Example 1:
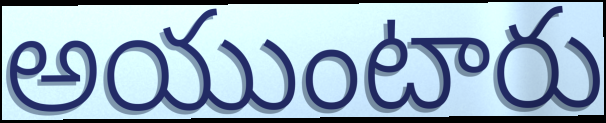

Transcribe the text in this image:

అయుంటారు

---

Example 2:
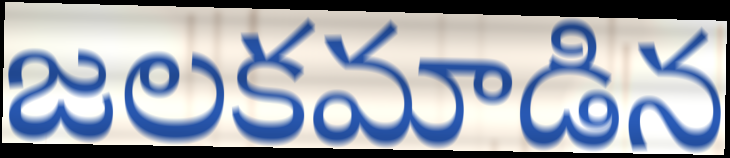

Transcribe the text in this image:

జలకమాడిన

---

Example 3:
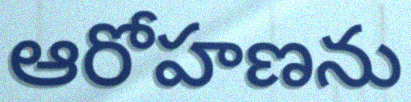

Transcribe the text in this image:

ఆరోహణను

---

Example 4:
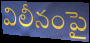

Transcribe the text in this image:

విలీనంపై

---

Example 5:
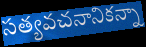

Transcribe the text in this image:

సత్యవచనానికన్నా